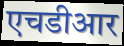
एचडीआर